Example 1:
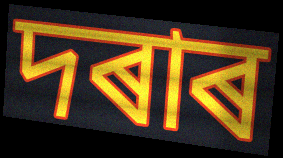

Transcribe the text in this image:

দৰাৰ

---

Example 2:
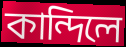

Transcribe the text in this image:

কান্দিলে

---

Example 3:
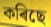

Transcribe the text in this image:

কৰিছে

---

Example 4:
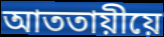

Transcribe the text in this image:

আততায়ীয়ে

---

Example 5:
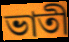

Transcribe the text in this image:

ভাতী